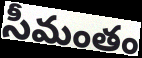
సీమంతం